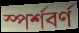
স্পৰ্শবৰ্ণ